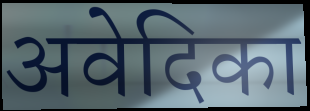
अवेदिका